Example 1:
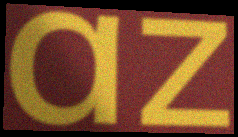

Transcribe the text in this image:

az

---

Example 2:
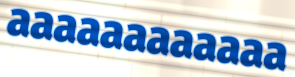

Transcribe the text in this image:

aaaaaaaaaaaa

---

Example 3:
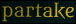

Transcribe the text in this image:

partake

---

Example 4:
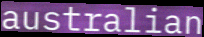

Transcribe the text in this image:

australian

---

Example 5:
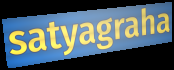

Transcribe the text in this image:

satyagraha